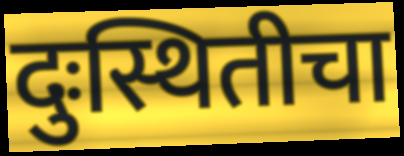
दुःस्थितीचा